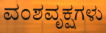
ವಂಶವೃಕ್ಷಗಳು